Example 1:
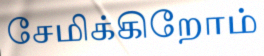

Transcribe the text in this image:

சேமிக்கிறோம்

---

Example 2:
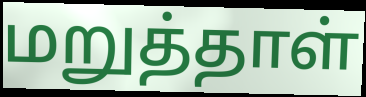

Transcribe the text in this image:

மறுத்தாள்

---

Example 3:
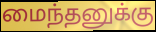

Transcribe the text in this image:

மைந்தனுக்கு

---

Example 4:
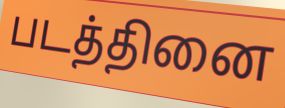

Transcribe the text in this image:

படத்தினை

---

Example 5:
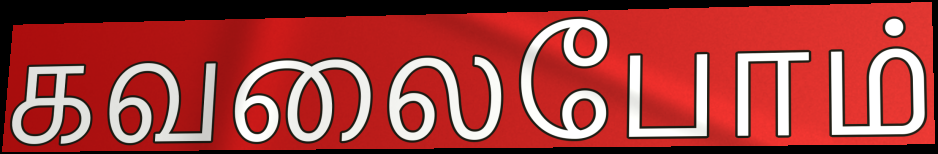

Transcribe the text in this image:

கவலைபோம்